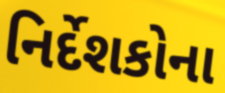
નિર્દેશકોના